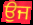
ਉਜ